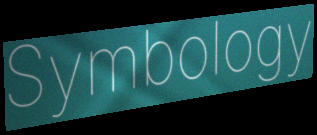
Symbology